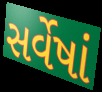
સર્વેષાં